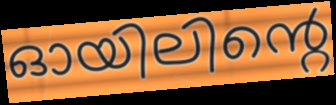
ഓയിലിന്റെ